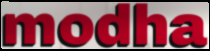
modha